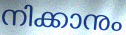
നിക്കാനും